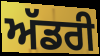
ਅੱਡਰੀ